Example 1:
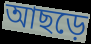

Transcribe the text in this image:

আছড়ে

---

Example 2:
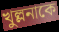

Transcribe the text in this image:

খুল্লনাকে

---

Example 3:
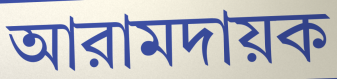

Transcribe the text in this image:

আরামদায়ক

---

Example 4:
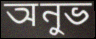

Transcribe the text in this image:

অনুভ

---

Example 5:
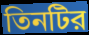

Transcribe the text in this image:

তিনটির